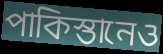
পাকিস্তানেও